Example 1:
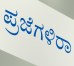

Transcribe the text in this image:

ಪ್ರಜೆಗಳಿರಾ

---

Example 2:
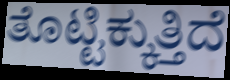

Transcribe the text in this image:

ತೊಟ್ಟಿಕ್ಕುತ್ತಿದೆ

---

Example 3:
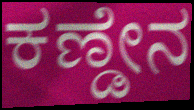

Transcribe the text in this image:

ಕಣ್ಡೇನ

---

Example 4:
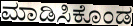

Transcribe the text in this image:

ಮಾಡಿಸಿಕೊಂಡ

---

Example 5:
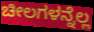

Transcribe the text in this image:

ಚೀಲಗಳನ್ನೆಲ್ಲ